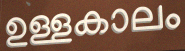
ഉള്ളകാലം